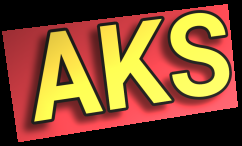
AKS